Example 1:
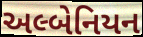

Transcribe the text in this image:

અલ્બેનિયન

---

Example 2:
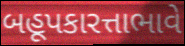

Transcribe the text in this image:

બહૂપકારત્તાભાવે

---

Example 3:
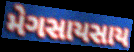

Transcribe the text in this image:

મેગસાયસાય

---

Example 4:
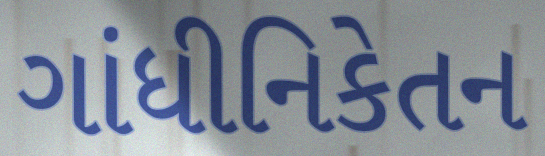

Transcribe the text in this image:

ગાંધીનિકેતન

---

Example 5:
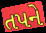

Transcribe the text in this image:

તપને